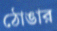
ঠোঙার